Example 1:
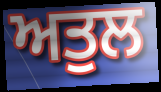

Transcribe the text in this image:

ਅਤੁਲ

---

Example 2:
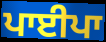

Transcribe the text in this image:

ਪਾਈਪਾ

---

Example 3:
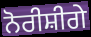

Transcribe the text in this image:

ਨੋਰੀਸ਼ੀਗੇ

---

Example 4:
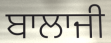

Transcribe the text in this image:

ਬਾਲਾਜੀ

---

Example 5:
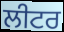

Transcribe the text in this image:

ਲੀਟਰ